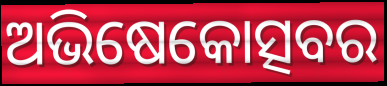
ଅଭିଷେକୋତ୍ସବର